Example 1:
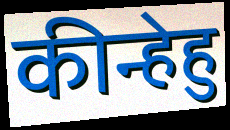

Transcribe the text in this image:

कीन्हेहु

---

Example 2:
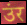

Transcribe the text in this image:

उंर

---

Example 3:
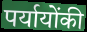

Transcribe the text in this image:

पर्यायोंकी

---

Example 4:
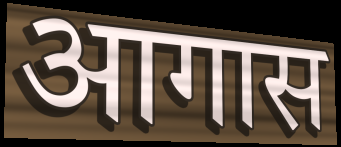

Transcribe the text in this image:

आगास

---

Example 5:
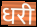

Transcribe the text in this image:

धरी